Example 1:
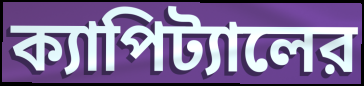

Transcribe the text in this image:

ক্যাপিট্যালের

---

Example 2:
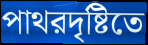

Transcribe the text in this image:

পাথরদৃষ্টিতে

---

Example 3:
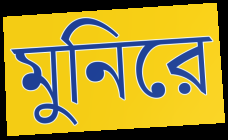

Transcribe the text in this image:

মুনিরে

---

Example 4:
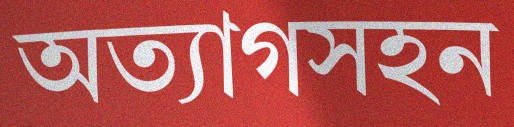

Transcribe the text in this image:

অত্যাগসহন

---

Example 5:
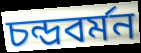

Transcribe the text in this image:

চন্দ্রবর্মন